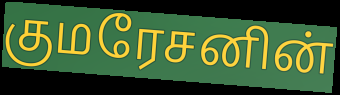
குமரேசனின்